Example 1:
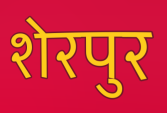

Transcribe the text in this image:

शेरपुर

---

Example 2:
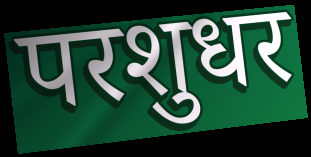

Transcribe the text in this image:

परशुधर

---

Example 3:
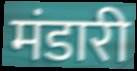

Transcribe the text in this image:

मंडारी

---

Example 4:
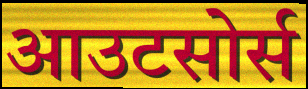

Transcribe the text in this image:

आउटसोर्स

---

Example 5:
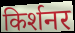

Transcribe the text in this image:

किर्शनर